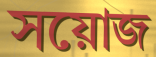
সয়োজ